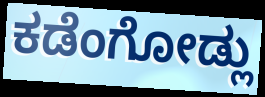
ಕಡೆಂಗೋಡ್ಲು